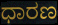
ಧಾರಣ